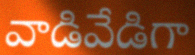
వాడివేడిగా